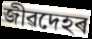
জীৱদেহৰ